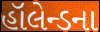
હૉલેન્ડના